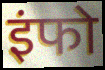
इंफो